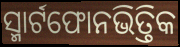
ସ୍ମାର୍ଟଫୋନଭିତ୍ତିକ